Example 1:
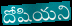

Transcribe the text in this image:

దోషియని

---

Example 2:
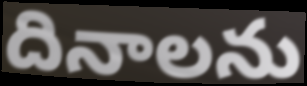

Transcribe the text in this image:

దినాలను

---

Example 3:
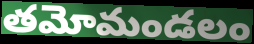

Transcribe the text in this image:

తమోమండలం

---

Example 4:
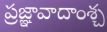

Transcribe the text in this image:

ప్రజ్ఞావాదాంశ్చ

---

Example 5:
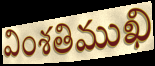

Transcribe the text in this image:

వింశతిముఖి